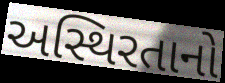
અસ્થિરતાનો